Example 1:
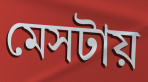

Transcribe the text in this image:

মেসটায়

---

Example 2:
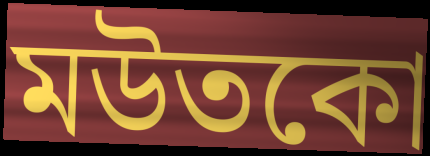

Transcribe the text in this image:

মউতকো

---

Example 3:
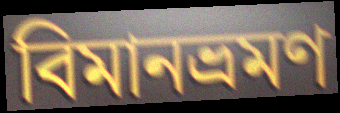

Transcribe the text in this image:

বিমানভ্রমণ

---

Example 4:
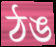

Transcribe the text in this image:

ঠঙ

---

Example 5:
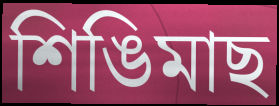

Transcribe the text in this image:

শিঙিমাছ